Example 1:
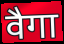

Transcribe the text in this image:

वैगा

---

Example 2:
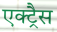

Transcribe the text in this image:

एक्ट्रैस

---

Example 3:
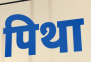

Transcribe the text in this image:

पिथा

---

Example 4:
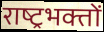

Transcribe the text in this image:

राष्ट्रभक्तों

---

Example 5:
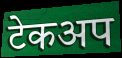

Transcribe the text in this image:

टेकअप